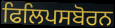
ਫਿਲਿਪਸਬੋਰਨ